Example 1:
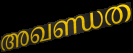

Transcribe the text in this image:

അഖണ്ഡത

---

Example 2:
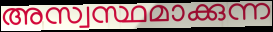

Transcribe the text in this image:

അസ്വസ്ഥമാക്കുന്ന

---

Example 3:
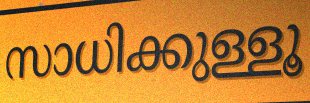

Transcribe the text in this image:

സാധിക്കുള്ളൂ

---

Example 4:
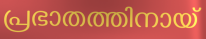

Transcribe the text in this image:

പ്രഭാതത്തിനായ്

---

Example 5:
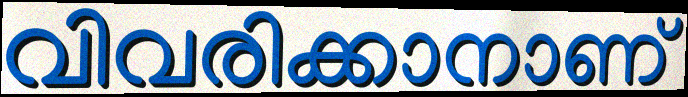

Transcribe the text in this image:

വിവരിക്കാനാണ്